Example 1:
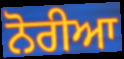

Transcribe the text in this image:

ਨੋਰੀਆ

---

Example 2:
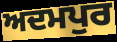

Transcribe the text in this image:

ਅਦਮਪੁਰ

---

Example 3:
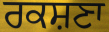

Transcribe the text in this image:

ਰਕਸ਼ਣਾ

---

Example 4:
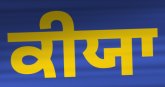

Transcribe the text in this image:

ਕੀਯਾ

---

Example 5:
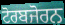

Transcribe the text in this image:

ਟੋਰਬਜੋਰਨ